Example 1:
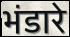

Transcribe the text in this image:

भंडारे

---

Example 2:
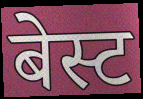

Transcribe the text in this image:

बेस्ट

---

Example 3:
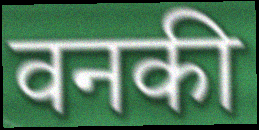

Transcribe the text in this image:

वनकी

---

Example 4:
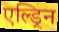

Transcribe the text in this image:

एल्ड्रिन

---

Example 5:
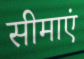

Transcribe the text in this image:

सीमाएं